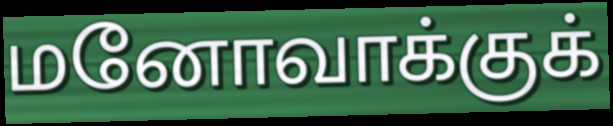
மனோவாக்குக்